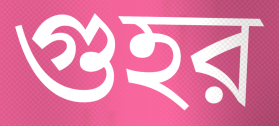
গুহর